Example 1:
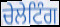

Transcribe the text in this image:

ਚੇਲੇਟਿੰਗ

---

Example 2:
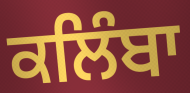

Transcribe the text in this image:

ਕਲਿੰਬਾ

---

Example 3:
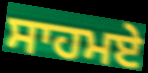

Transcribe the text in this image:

ਸਾਹਮਏ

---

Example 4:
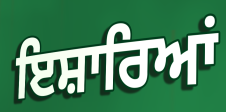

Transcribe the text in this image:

ਇਸ਼ਾਰਿਆਂ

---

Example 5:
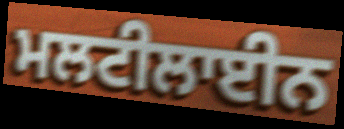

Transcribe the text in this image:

ਮਲਟੀਲਾਈਨ